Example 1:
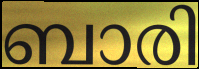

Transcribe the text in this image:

ബാരി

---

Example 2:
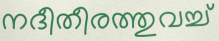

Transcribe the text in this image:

നദീതീരത്തുവച്ച്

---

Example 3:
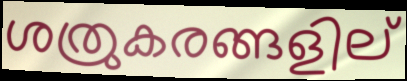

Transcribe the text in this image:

ശത്രുകരങ്ങളില്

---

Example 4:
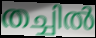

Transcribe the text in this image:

തച്ചിൽ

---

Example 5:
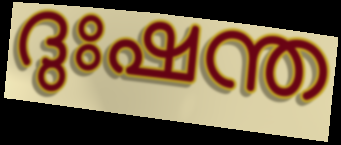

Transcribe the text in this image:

ദുഃഷന്ത